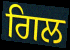
ਗਿਲ